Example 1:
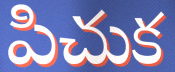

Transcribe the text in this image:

పిచుక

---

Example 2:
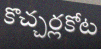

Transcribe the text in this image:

కొచ్చర్లకోట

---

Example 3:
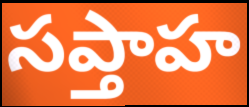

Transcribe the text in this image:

సప్తాహ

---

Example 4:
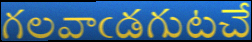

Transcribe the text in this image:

గలవాఁడగుటచే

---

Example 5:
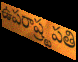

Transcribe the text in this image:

ఉపరాష్ర్టపతి